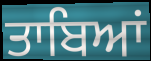
ਤਾਬਿਆਂ